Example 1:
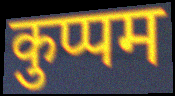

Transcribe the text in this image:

कुप्पम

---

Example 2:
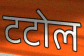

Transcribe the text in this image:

टटोल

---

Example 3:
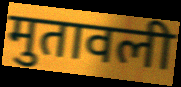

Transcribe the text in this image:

मुतावली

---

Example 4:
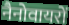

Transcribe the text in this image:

नैनोवायरों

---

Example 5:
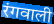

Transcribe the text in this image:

रंगवाली